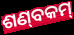
ଶଣ୍‌ବକମ୍